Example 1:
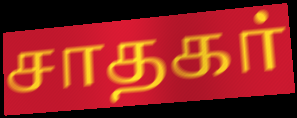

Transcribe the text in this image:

சாதகர்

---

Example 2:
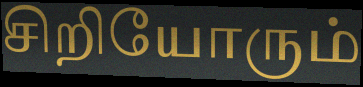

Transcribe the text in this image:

சிறியோரும்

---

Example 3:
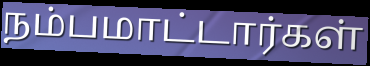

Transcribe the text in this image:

நம்பமாட்டார்கள்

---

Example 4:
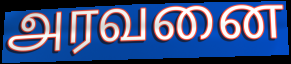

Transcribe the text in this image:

அரவனை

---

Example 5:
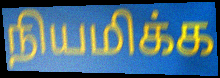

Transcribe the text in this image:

நியமிக்க